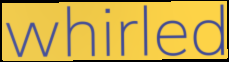
whirled